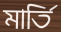
মার্তি